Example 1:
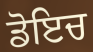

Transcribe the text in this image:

ਡੋਇਚ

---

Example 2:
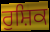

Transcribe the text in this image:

ਰੁਸ਼ਿਕ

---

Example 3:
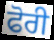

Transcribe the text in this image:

ਫੋਰੀ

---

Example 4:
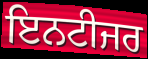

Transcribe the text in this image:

ਇਨਟੀਜਰ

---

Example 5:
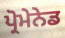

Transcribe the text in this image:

ਪ੍ਰੋਮੇਨੇਡ